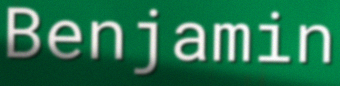
Benjamin